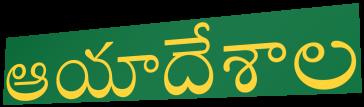
ఆయాదేశాల